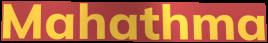
Mahathma